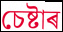
চেষ্টাৰ